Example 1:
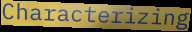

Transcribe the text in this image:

Characterizing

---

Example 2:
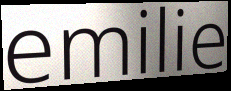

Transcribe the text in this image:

emilie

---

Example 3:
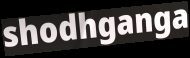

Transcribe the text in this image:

shodhganga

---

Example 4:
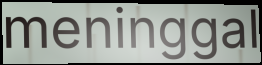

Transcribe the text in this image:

meninggal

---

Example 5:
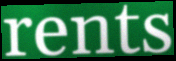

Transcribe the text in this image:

rents